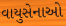
વાયુસેનાઓ